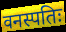
वनस्पतिः